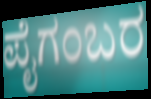
ಪೈಗಂಬರ